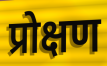
प्रोक्षण